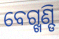
ବେଗ୍ଖଣ୍ଡି